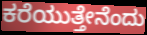
ಕರೆಯುತ್ತೇನೆಂದು